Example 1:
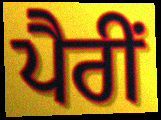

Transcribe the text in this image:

ਪੈਰੀਂ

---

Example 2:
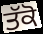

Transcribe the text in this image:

ਤੱਕੋ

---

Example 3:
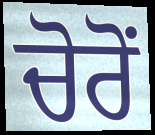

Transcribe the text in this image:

ਚੋਰੋਂ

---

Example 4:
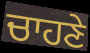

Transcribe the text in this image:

ਚਾਹਣੇ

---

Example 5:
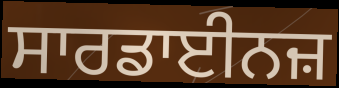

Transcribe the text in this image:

ਸਾਰਡਾਈਨਜ਼